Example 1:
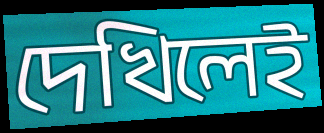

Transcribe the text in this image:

দেখিলেই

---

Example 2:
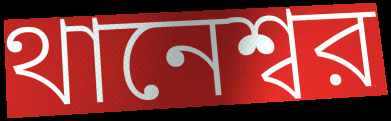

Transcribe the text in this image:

থানেশ্বর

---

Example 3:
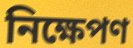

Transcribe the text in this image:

নিক্ষেপণ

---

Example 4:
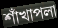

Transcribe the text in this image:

শাঁখাপলা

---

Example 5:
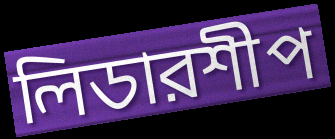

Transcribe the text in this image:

লিডারশীপ